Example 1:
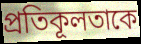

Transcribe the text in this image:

প্রতিকূলতাকে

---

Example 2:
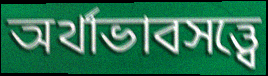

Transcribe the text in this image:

অর্থাভাবসত্ত্বে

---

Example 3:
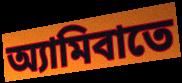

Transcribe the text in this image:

অ্যামিবাতে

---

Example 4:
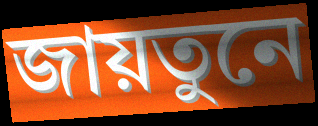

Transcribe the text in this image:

জায়তুনে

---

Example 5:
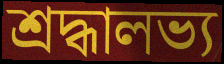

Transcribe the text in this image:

শ্রদ্ধালভ্য